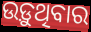
ଉଡ଼ୁଥିବାର